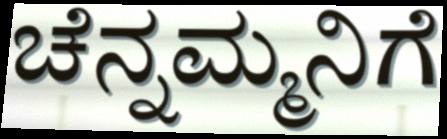
ಚೆನ್ನಮ್ಮನಿಗೆ